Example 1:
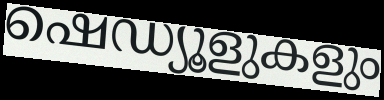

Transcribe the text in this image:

ഷെഡ്യൂളുകളും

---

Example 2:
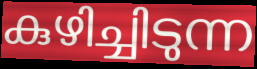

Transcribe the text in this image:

കുഴിച്ചിടുന്ന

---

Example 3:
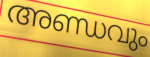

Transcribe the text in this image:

അണ്ഡവും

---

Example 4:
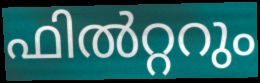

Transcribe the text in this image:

ഫിൽറ്ററും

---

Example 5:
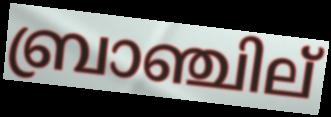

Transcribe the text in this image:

ബ്രാഞ്ചില്